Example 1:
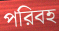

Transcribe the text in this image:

পরিবহ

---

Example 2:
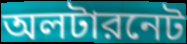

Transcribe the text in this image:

অলটারনেট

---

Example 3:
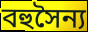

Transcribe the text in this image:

বহুসৈন্য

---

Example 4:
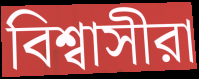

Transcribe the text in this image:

বিশ্বাসীরা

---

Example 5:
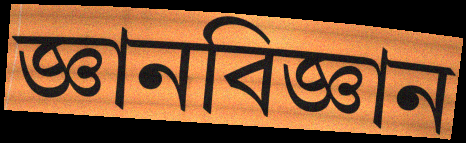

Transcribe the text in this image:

জ্ঞানবিজ্ঞান